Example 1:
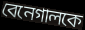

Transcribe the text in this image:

বেনেগালকে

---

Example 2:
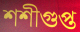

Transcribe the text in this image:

শশীগুপ্ত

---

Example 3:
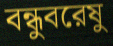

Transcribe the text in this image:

বন্ধুবরেষু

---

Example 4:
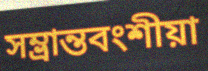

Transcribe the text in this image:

সম্ভ্রান্তবংশীয়া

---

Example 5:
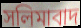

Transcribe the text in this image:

সলিমাবাদ